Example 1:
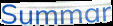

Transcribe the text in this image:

Summar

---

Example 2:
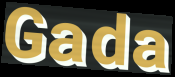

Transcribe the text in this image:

Gada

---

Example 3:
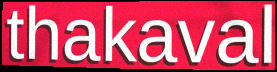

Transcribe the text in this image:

thakaval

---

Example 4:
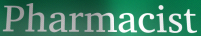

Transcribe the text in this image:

Pharmacist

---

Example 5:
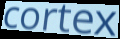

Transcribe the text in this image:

cortex